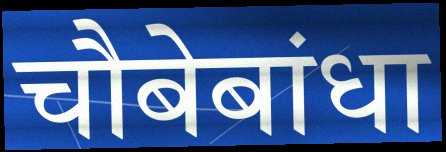
चौबेबांधा